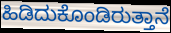
ಹಿಡಿದುಕೊಂಡಿರುತ್ತಾನೆ